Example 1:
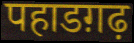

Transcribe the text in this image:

पहाडग़ढ़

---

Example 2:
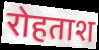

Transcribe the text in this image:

रोहताश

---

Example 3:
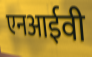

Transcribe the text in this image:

एनआईवी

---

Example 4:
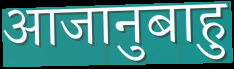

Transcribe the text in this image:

आजानुबाहु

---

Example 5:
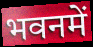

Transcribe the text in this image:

भवनमें